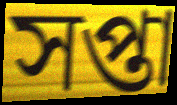
সপ্তা